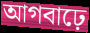
আগবাঢ়ে